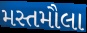
મસ્તમૌલા